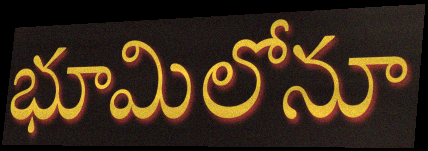
భూమిలోనూ